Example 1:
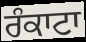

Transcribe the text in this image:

ਰੰਕਾਟਾ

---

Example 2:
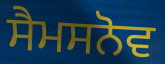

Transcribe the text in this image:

ਸੈਮਸਨੋਵ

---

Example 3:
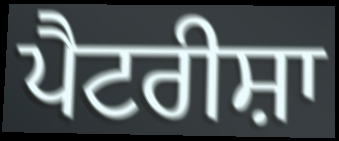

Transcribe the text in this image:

ਪੈਟਰੀਸ਼ਾ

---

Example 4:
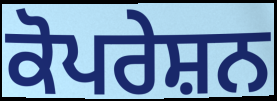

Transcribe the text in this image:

ਕੋਪਰੇਸ਼ਨ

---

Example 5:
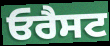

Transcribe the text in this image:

ਓਰੈਸਟ